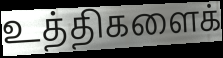
உத்திகளைக்